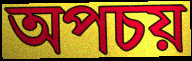
অপচয়